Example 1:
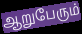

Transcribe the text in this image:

ஆறுபேரும்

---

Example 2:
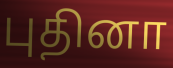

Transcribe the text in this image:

புதினா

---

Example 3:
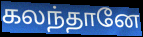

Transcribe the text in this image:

கலந்தானே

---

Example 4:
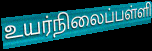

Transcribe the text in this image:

உயர்நிலைப்பள்ளி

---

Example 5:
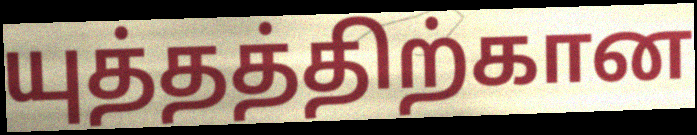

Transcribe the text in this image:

யுத்தத்திற்கான